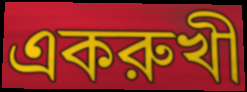
একরুখী